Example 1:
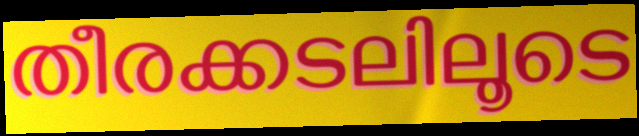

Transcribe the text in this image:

തീരക്കടലിലൂടെ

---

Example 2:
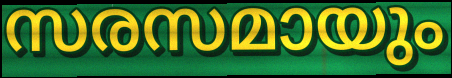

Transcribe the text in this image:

സരസമായും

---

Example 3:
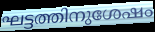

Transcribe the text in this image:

ഘട്ടത്തിനുശേഷം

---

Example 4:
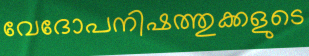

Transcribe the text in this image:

വേദോപനിഷത്തുക്കളുടെ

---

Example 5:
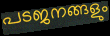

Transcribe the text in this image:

പടജനങ്ങളും